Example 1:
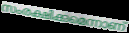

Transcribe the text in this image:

സംരക്ഷിക്കുമെന്നാണ്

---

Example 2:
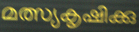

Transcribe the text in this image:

മത്സ്യകൃഷിക്കു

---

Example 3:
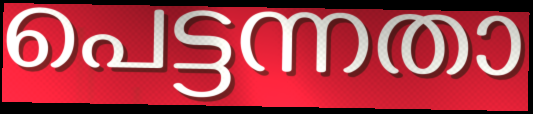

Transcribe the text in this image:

പെട്ടന്നതാ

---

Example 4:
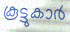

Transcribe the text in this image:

കൂട്ടുകാർ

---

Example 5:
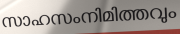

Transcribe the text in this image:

സാഹസംനിമിത്തവും